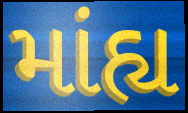
માંહ્ય